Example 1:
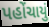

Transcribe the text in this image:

પહોંચાયું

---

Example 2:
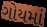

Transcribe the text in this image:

ગોયમાં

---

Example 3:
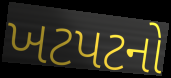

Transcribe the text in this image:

ખટપટનો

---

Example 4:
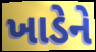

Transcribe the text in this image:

ખાડેને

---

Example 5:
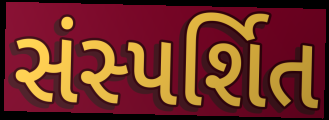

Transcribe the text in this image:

સંસ્પર્શિત